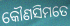
କୌଣସିମତେ